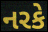
નરકે